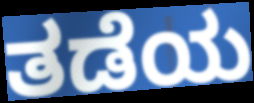
ತಡೆಯ